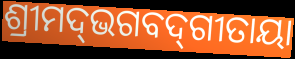
ଶ୍ରୀମଦ୍‌ଭଗବଦ୍‌ଗୀତାୟା